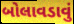
બોલાવડાવું